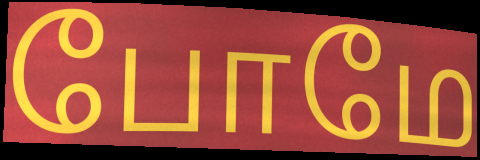
போமே